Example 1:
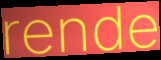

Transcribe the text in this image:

rende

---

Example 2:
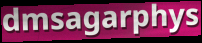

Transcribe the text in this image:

dmsagarphys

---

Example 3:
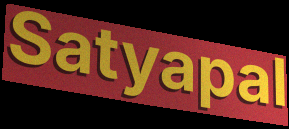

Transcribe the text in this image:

Satyapal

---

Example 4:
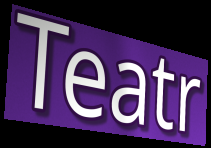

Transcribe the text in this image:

Teatr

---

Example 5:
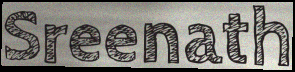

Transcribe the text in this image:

Sreenath